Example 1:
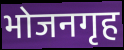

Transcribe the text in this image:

भोजनगृह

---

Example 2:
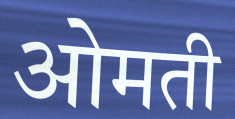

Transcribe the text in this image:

ओमती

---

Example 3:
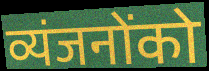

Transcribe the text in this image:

व्यंजनोंको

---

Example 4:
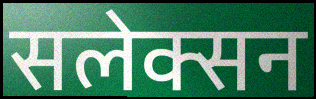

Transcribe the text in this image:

सलेक्सन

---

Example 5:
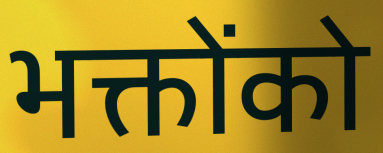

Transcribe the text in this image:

भक्तोंको